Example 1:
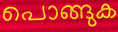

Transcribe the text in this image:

പൊങ്ങുക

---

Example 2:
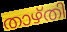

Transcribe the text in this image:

താഴ്തി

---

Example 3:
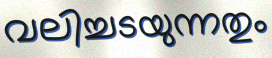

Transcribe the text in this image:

വലിച്ചടയുന്നതും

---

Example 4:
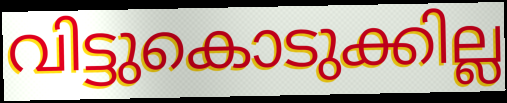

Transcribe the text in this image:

വിട്ടുകൊടുക്കില്ല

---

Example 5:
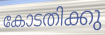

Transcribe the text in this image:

കോടതിക്കു